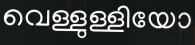
വെള്ളുള്ളിയോ